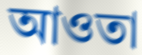
আওতা